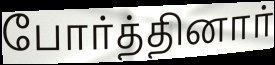
போர்த்தினார்